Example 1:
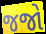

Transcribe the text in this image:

જજો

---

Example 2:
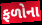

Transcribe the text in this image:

ફળોના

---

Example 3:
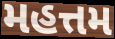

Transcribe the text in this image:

મહત્તમ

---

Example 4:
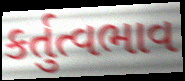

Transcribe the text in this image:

કર્તુત્વભાવ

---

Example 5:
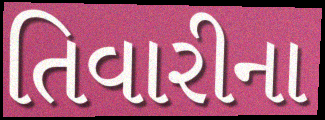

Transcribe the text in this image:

તિવારીના